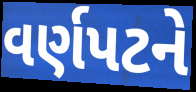
વર્ણપટને